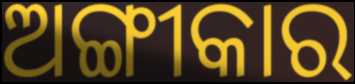
ଅଙ୍ଗୀକାର